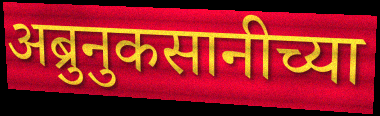
अब्रुनुकसानीच्या